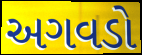
અગવડો